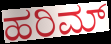
ಹರಿಮ್